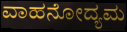
ವಾಹನೋದ್ಯಮ